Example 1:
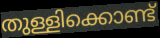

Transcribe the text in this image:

തുള്ളിക്കൊണ്ട്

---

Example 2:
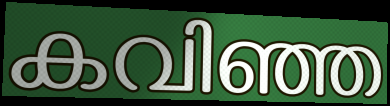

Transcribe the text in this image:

കവിഞ്ഞ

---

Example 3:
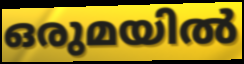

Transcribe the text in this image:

ഒരുമയിൽ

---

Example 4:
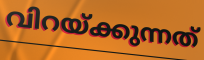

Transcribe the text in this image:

വിറയ്ക്കുന്നത്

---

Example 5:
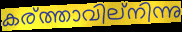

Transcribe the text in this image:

കര്ത്താവില്നിന്നു